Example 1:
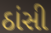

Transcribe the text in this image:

ઠાંસી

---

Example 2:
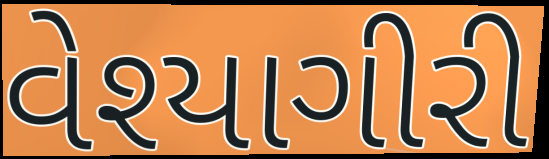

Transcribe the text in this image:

વેશ્યાગીરી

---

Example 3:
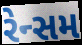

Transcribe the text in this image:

રેન્સમ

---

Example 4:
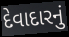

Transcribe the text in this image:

દેવાદારનું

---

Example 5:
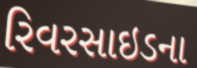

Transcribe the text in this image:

રિવરસાઇડના